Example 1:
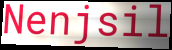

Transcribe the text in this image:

Nenjsil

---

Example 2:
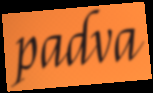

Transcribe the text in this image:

padva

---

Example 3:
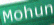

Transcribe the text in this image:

Mohun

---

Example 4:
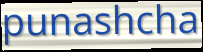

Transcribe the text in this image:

punashcha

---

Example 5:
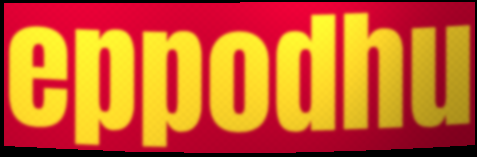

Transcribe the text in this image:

eppodhu